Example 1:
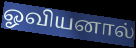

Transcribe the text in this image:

ஓவியனால்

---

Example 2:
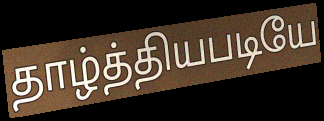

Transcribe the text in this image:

தாழ்த்தியபடியே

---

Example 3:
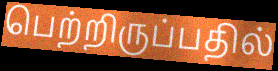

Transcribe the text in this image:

பெற்றிருப்பதில்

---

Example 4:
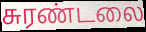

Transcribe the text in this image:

சுரண்டலை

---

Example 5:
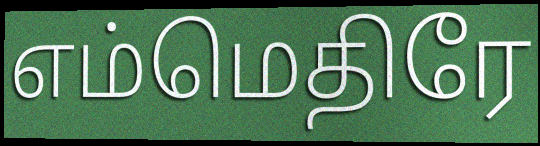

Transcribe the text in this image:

எம்மெதிரே